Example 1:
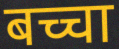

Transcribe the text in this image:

बच्चा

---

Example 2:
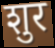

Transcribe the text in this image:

शुर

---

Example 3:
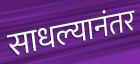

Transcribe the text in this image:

साधल्यानंतर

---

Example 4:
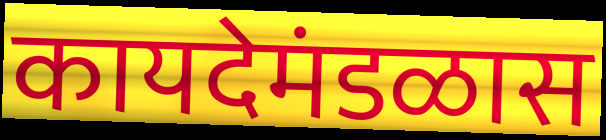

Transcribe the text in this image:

कायदेमंडळास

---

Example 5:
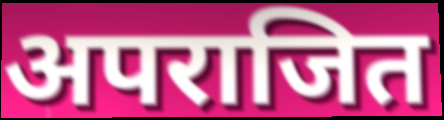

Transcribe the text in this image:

अपराजित